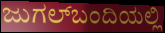
ಜುಗಲ್‌ಬಂದಿಯಲ್ಲಿ